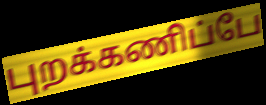
புறக்கணிப்பே